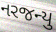
નરજન્યુ